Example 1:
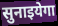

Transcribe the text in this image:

सुनाइयेगा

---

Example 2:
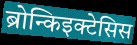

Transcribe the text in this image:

ब्रोन्किइक्टेसिस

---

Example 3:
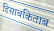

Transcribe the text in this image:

हिसाबकिताब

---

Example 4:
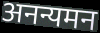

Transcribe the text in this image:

अनन्यमन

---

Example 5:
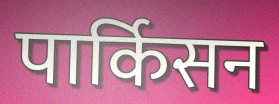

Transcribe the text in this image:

पार्किसन